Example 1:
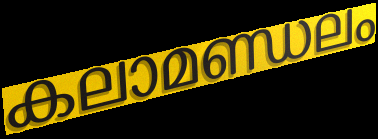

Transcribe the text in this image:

കലാമണ്ഡലം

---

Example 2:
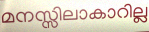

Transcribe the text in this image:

മനസ്സിലാകാറില്ല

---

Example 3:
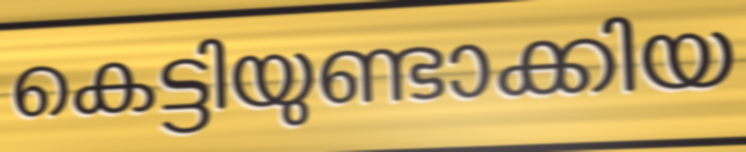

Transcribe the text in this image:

കെട്ടിയുണ്ടാക്കിയ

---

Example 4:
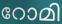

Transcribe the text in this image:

റോമി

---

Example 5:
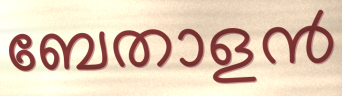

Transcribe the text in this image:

ബേതാളൻ